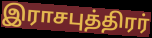
இராசபுத்திரர்